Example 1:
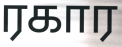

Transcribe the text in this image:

ரகார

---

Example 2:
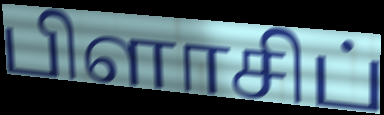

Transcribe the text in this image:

பிளாசிப்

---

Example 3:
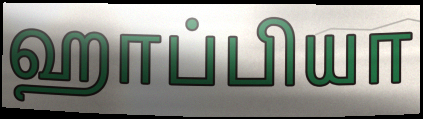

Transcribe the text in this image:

ஹாப்பியா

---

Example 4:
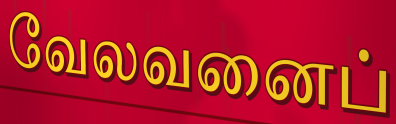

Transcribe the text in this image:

வேலவனைப்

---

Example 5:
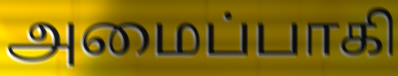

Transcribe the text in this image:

அமைப்பாகி